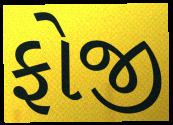
ફોજી